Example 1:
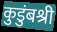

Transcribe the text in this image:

कुडुंबश्री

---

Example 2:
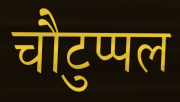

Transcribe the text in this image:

चौटुप्पल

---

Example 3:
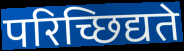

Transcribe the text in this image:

परिच्छिद्यते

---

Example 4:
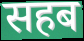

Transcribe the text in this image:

सहब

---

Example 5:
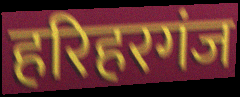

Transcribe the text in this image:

हरिहरगंज